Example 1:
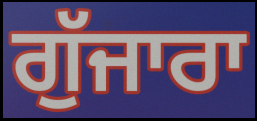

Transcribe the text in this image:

ਗੁੱਜਾਰਾ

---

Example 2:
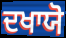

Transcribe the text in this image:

ਦਖਾਯੋ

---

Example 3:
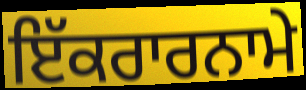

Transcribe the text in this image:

ਇੱਕਰਾਰਨਾਮੇ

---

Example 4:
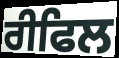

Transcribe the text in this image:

ਰੀਫਿਲ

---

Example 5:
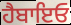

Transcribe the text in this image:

ਹੈਬਾਇਓ